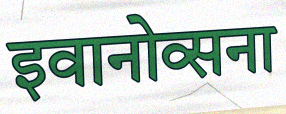
इवानोव्सना